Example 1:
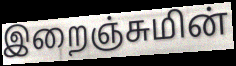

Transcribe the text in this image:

இறைஞ்சுமின்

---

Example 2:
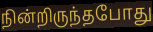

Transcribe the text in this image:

நின்றிருந்தபோது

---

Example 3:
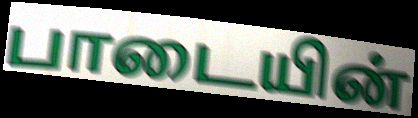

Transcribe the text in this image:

பாடையின்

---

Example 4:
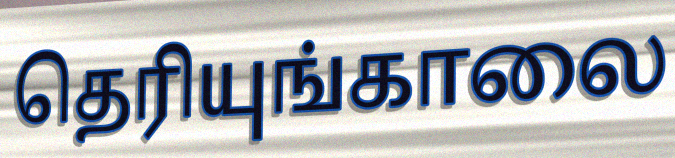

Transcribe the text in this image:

தெரியுங்காலை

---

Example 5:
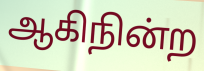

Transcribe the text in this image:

ஆகிநின்ற